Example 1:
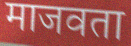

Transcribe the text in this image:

माजवता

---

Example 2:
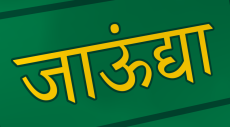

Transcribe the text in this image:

जाऊंद्या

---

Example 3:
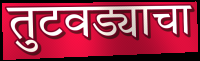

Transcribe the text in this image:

तुटवड्याचा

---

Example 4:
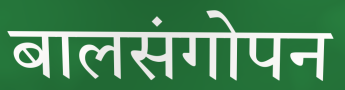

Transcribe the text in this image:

बालसंगोपन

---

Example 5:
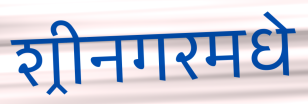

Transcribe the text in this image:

श्रीनगरमधे